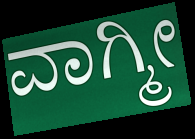
ವಾಗ್ಮೀ